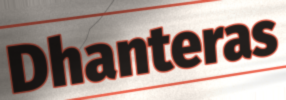
Dhanteras